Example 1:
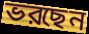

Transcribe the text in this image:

ভরছেন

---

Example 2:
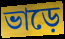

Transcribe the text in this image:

ভাড়ে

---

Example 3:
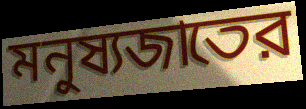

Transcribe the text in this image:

মনুষ্যজাতের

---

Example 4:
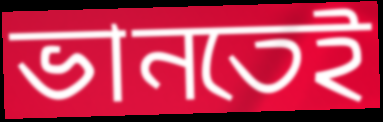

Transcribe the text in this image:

ভানতেই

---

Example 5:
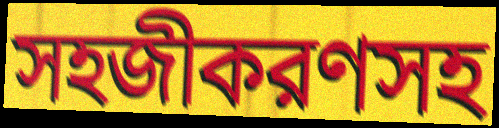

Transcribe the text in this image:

সহজীকরণসহ